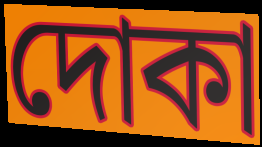
দোকা